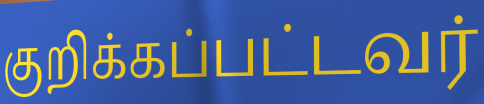
குறிக்கப்பட்டவர்